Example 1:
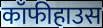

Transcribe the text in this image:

कॉफीहाउस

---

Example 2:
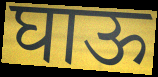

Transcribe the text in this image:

घाऊ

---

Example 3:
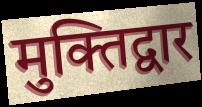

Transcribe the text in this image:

मुक्तिद्वार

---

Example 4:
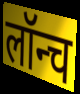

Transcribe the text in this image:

लॉन्च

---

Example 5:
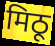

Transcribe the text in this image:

मिठू